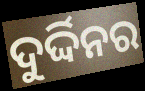
ଦୁର୍ଦ୍ଦିନର